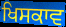
ਖਿਸਕਾਵ